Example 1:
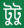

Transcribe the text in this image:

টুটু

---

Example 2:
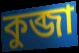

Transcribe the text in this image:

কুব্জা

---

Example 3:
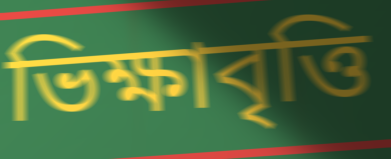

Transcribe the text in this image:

ভিক্ষাবৃত্তি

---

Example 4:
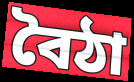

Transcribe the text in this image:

বৈঠা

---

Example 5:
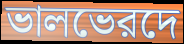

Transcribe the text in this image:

ভালভেরদে